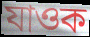
যাওক